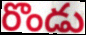
రొండు